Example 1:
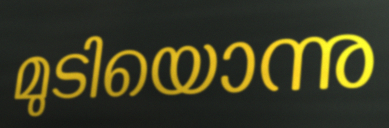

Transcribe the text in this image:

മുടിയൊന്നു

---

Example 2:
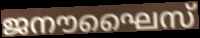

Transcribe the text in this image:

ജനൗഘൈസ്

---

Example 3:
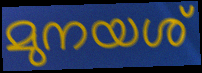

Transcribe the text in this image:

മുനയശ്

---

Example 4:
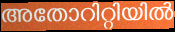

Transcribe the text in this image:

അതോറിറ്റിയിൽ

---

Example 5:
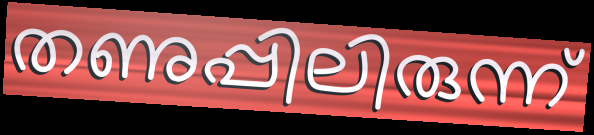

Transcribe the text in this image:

തണുപ്പിലിരുന്ന്